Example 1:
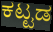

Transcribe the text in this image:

ಕಟ್ಟಡ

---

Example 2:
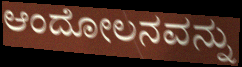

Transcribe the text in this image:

ಆಂದೋಲನವನ್ನು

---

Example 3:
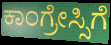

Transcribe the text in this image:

ಕಾಂಗ್ರೇಸ್ಸಿಗೆ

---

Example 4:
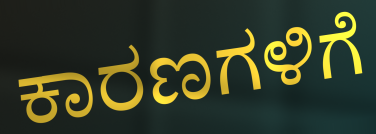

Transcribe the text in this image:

ಕಾರಣಗಳಿಗೆ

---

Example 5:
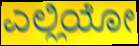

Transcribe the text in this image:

ಎಲ್ಲಿಯೋ